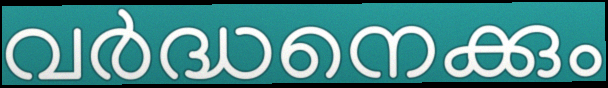
വർദ്ധനെക്കും